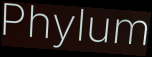
Phylum